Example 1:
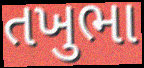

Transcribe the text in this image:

તખુભા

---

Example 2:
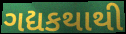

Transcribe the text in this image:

ગદ્યકથાથી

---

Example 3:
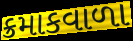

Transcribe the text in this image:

ક્રમાકવાળા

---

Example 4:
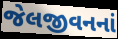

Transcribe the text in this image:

જેલજીવનનાં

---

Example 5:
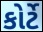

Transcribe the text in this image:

કોર્ટે